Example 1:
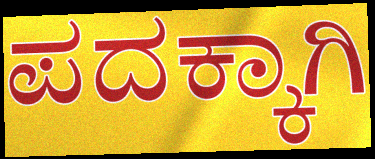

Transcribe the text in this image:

ಪದಕ್ಕಾಗಿ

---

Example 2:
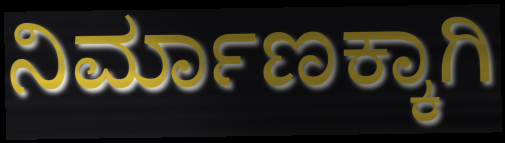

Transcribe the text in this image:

ನಿರ್ಮಾಣಕ್ಕಾಗಿ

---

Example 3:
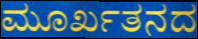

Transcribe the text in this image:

ಮೂರ್ಖತನದ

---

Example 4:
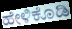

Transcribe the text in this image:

ಹೇಳಿಕೊಡಿ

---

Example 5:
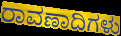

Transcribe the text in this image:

ರಾವಣಾದಿಗಳು